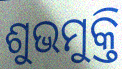
ଶୁଭମୁକ୍ତି